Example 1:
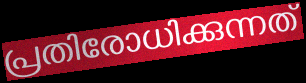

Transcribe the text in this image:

പ്രതിരോധിക്കുന്നത്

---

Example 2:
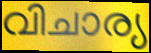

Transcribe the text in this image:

വിചാര്യ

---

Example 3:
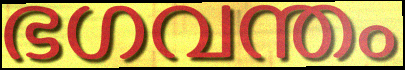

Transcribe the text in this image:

ഭഗവന്തം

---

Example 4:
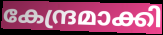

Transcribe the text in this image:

കേന്ദ്രമാക്കി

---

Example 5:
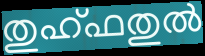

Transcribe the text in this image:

തുഹ്ഫതുൽ